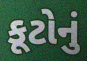
કૂટોનું